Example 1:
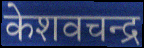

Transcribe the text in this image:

केशवचन्द्र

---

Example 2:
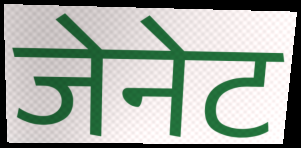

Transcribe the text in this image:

जेनेट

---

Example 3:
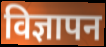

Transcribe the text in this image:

विज्ञापन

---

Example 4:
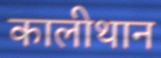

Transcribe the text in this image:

कालीथान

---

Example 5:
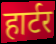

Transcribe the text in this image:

हार्टर